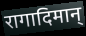
रागादिमान्